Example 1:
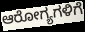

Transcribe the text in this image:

ಆರೋಗ್ಯಗಳಿಗೆ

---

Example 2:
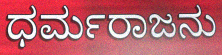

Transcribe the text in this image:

ಧರ್ಮರಾಜನು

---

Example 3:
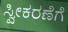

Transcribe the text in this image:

ಸ್ವೀಕರಣೆಗೆ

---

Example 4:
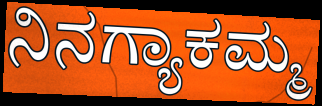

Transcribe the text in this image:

ನಿನಗ್ಯಾಕಮ್ಮ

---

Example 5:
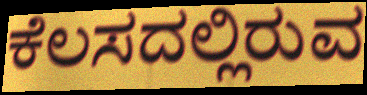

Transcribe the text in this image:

ಕೆಲಸದಲ್ಲಿರುವ